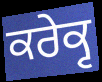
ਕਰੇਕ੍ਟ